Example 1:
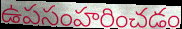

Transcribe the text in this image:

ఉపసంహరించడం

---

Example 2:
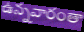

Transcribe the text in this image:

ఉన్నవారంతా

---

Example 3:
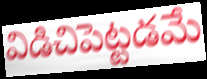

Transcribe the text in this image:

విడిచిపెట్టడమే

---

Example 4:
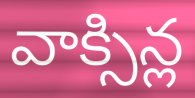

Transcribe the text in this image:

వాక్సిన్ల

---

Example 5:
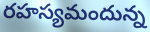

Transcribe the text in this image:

రహస్యమందున్న